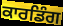
ਕਾਰਡਿੰਗ